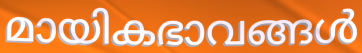
മായികഭാവങ്ങൾ